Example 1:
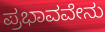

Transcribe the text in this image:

ಪ್ರಭಾವವೇನು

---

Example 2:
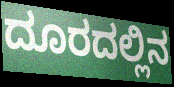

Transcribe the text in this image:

ದೂರದಲ್ಲಿನ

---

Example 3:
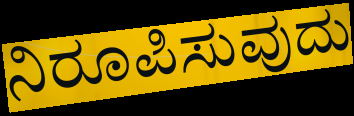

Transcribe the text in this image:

ನಿರೂಪಿಸುವುದು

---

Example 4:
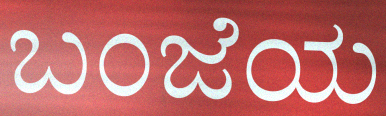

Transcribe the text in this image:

ಬಂಜೆಯ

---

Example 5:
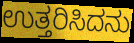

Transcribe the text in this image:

ಉತ್ತರಿಸಿದನು